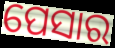
ପେସାର